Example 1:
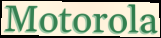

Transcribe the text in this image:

Motorola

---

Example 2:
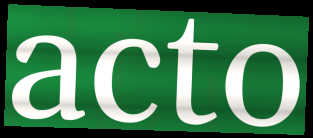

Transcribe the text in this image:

acto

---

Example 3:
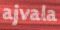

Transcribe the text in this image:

ajvala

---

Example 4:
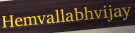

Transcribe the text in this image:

Hemvallabhvijay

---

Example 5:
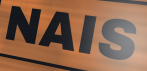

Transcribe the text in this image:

NAIS